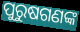
ପୁରୁଷଗଣଙ୍କ